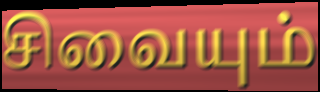
சிவையும்